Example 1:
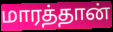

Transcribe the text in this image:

மாரத்தான்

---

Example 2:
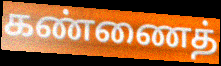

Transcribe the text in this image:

கண்ணைத்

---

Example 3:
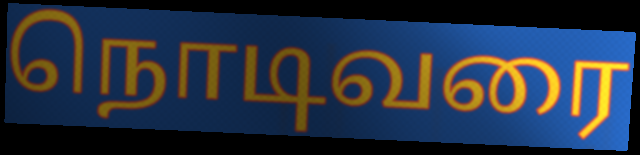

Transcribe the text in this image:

நொடிவரை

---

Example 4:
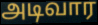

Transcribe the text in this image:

அடிவார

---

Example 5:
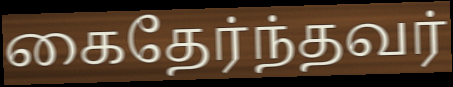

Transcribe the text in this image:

கைதேர்ந்தவர்